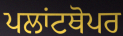
ਪਲਾਂਟਥੋਪਰ